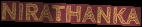
NIRATHANKA